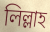
লিল্লাহ